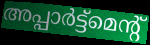
അപ്പാർട്ട്മെന്റ്